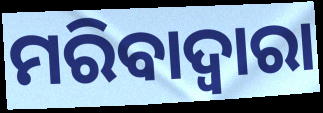
ମରିବାଦ୍ୱାରା